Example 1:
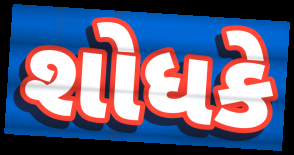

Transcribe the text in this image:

શોધકે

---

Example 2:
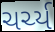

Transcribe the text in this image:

ચર્ચ્ય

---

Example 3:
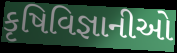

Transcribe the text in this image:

કૃષિવિજ્ઞાનીઓ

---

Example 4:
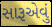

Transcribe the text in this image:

સારૂએવું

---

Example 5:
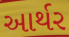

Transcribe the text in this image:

આર્થર